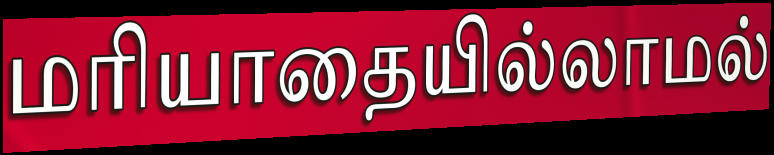
மரியாதையில்லாமல்